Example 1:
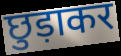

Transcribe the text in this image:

छुड़ाकर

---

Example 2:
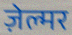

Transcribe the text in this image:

ज़ेल्मर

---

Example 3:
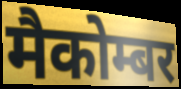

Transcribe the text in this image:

मैकोम्बर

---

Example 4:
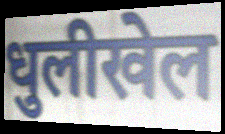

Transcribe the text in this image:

धुलीखेल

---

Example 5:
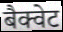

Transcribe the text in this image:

बैक्वेट